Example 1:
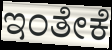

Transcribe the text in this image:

ಇಂತೇಕೆ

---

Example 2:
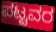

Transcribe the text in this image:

ಪಟ್ಟವರ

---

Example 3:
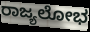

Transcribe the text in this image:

ರಾಜ್ಯಲೋಭ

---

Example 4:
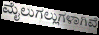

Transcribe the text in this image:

ಮೈಲುಗಲ್ಲುಗಳಾಗಿವೆ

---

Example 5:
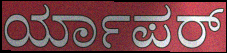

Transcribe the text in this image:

ರ್ಯಾಪರ್